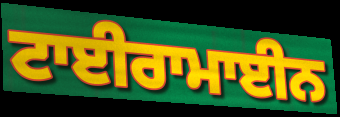
ਟਾਈਰਾਮਾਈਨ